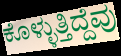
ಕೊಳ್ಳುತ್ತಿದ್ದೆವು